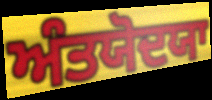
ਅੰਤਯੋਦਯਾ